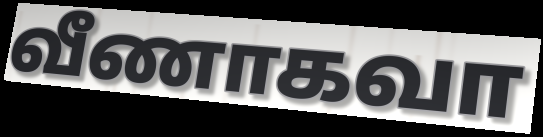
வீணாகவா